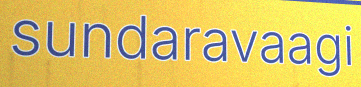
sundaravaagi